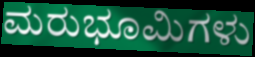
ಮರುಭೂಮಿಗಳು